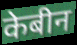
केबीन